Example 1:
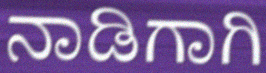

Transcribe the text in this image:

ನಾಡಿಗಾಗಿ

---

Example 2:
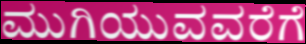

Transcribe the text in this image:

ಮುಗಿಯುವವರೆಗೆ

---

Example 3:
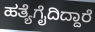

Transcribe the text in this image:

ಹತ್ಯೆಗೈದಿದ್ದಾರೆ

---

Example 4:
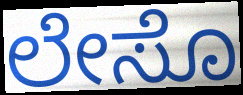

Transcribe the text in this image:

ಲೇಸೊ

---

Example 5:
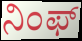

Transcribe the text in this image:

ನಿಂಫ್